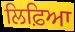
ਲਿਫ਼ਿਆ